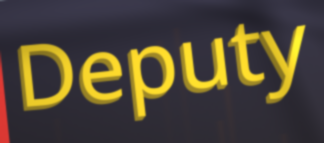
Deputy